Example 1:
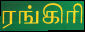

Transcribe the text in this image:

ரங்கிரி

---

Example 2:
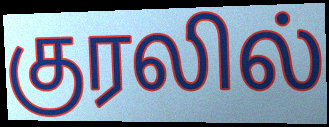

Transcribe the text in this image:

குரலில்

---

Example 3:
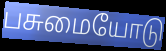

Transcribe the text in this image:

பசுமையோடு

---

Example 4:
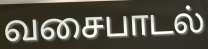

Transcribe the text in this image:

வசைபாடல்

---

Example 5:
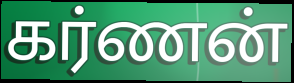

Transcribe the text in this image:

கர்ணன்